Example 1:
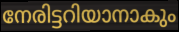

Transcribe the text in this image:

നേരിട്ടറിയാനാകും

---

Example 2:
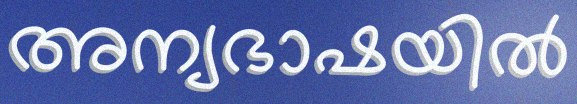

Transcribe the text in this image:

അന്യഭാഷയിൽ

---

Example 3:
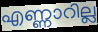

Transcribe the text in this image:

എണ്ണാറില്ല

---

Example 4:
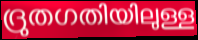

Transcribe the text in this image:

ദ്രുതഗതിയിലുള്ള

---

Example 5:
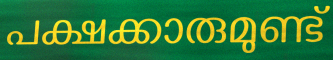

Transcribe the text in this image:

പക്ഷക്കാരുമുണ്ട്